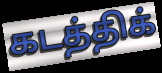
கடத்திக்